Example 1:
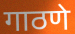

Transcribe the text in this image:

गाठणे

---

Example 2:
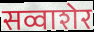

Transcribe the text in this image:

सव्वाशेर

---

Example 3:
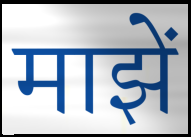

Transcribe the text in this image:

माझें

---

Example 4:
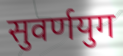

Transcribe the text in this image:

सुवर्णयुग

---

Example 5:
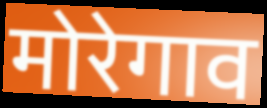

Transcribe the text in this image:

मोरेगाव